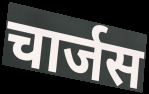
चार्जस